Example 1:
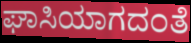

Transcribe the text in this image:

ಘಾಸಿಯಾಗದಂತೆ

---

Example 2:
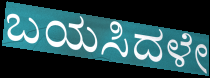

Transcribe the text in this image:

ಬಯಸಿದಳೇ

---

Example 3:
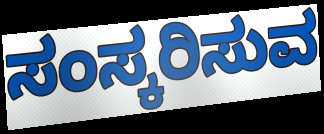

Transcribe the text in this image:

ಸಂಸ್ಕರಿಸುವ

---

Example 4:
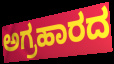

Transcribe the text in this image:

ಅಗ್ರಹಾರದ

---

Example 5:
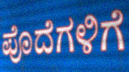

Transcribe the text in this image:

ಪೊದೆಗಳಿಗೆ